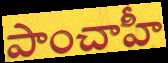
పాంచాహీ